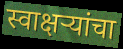
स्वाक्षऱ्यांचा